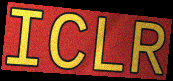
ICLR